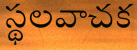
స్థలవాచక